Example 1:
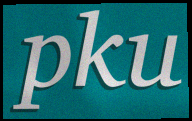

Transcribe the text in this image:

pku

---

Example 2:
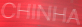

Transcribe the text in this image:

CHINHA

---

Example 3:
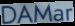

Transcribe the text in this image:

DAMar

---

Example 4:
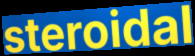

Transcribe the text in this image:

steroidal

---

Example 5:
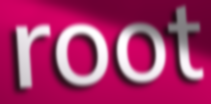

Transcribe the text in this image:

root